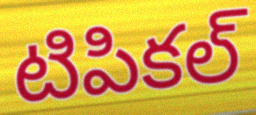
టిపికల్